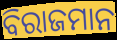
ବିରାଜମାନ